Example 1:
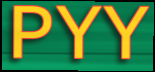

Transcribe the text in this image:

PYY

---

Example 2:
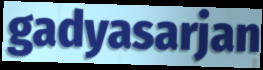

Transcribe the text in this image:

gadyasarjan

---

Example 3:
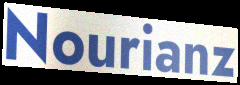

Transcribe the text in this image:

Nourianz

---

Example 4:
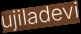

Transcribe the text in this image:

ujiladevi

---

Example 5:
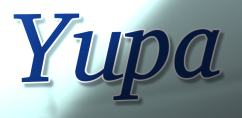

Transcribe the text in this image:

Yupa